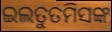
ଇଲତୁତମିସଙ୍କ